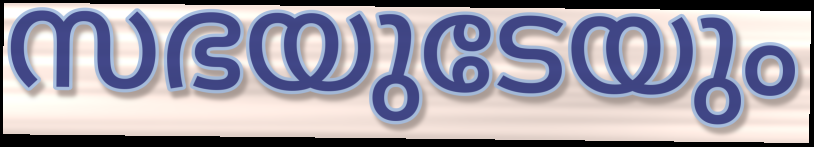
സഭയുടേയും